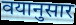
वयानुसार